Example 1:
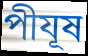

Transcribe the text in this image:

পীযূষ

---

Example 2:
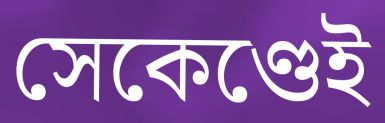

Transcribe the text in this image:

সেকেণ্ডেই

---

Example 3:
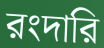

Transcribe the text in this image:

রংদারি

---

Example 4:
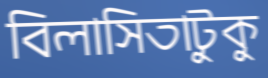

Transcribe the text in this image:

বিলাসিতাটুকু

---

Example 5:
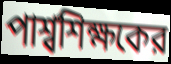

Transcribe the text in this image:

পার্শ্বশিক্ষকের